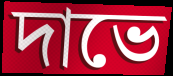
দাভে